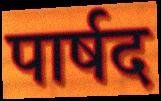
पार्षद